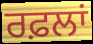
ਰਫ਼ਲਾਂ